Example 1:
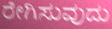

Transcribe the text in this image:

ರೇಗಿಸುವುದು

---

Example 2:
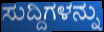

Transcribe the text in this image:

ಸುದ್ದಿಗಳನ್ನು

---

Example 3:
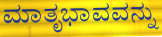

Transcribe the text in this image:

ಮಾತೃಭಾವವನ್ನು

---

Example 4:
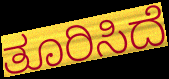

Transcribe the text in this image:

ತೂರಿಸಿದೆ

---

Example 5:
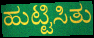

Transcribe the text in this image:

ಹುಟ್ಟಿಸಿತು